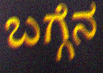
ಬಗ್ಗೆನ